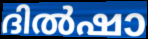
ദിൽഷാ